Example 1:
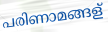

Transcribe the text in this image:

പരിണാമങ്ങള്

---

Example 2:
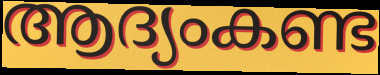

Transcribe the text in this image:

ആദ്യംകണ്ട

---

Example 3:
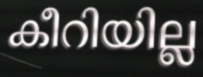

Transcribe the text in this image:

കീറിയില്ല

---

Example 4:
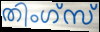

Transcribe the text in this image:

തിംഗ്സ്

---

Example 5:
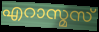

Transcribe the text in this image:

എറാസ്മസ്